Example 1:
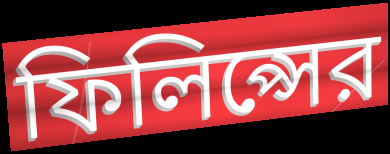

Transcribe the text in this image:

ফিলিপ্সের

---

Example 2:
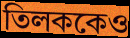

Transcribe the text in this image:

তিলককেও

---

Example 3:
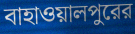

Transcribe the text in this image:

বাহাওয়ালপুরের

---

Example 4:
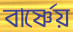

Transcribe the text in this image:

বার্ষ্ণেয়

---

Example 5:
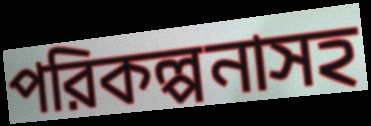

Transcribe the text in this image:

পরিকল্পনাসহ